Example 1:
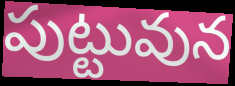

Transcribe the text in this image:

పుట్టువున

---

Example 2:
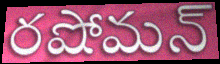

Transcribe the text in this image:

రషోమన్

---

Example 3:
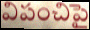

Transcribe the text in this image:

విపంచిపై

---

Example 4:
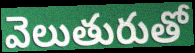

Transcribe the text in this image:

వెలుతురుతో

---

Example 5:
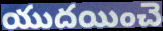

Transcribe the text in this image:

యుదయించె